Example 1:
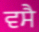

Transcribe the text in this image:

ਵਸੈ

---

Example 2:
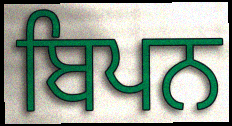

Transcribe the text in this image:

ਬਿਪਨ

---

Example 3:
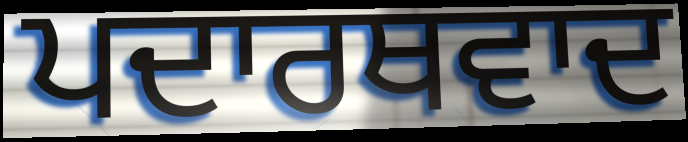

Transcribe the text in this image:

ਪਦਾਰਥਵਾਦ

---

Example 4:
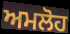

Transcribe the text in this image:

ਅਮਲੋਹ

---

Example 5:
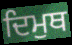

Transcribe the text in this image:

ਦਿਮੁਥ